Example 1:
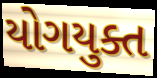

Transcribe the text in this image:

યોગયુક્ત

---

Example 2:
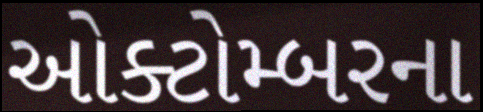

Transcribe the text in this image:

ઓક્ટોમ્બરના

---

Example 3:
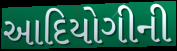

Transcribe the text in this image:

આદિયોગીની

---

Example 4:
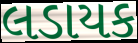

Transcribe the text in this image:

લડાયક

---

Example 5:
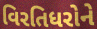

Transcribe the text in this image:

વિરતિધરોને